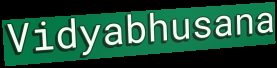
Vidyabhusana